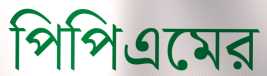
পিপিএমের